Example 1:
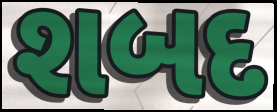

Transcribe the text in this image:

શબદ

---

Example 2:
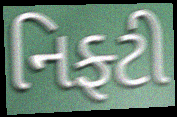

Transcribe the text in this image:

નિફ્ટી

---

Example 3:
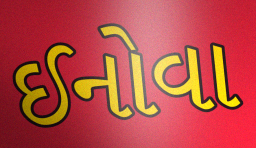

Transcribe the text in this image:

ઈનોવા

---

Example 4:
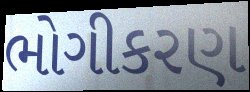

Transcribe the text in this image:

ભોગીકરણ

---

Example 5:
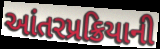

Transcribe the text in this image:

આંતરપ્રક્રિયાની